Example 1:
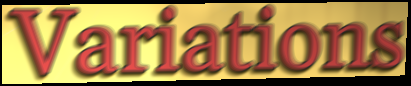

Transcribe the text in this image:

Variations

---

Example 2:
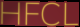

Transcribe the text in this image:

HFCL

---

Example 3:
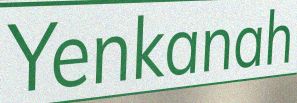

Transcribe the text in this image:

Yenkanah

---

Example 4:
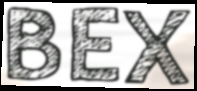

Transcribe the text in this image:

BEX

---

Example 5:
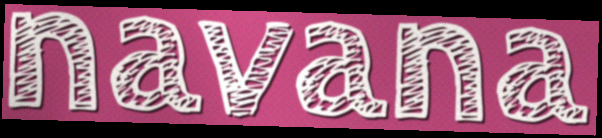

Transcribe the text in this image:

navana